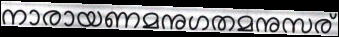
നാരായണമനുഗതമനുസര്